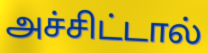
அச்சிட்டால்